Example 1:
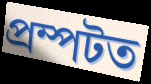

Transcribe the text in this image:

প্ৰম্পটত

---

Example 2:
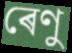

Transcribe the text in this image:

ৰেণু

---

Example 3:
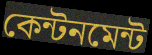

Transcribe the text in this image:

কেন্টনমেন্ট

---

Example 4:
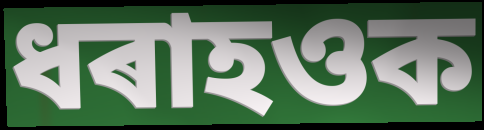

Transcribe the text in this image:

ধৰাহওক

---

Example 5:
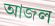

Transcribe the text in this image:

আজল